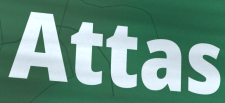
Attas